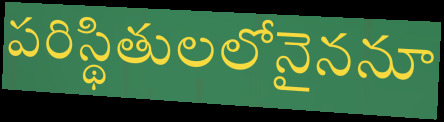
పరిస్థితులలోనైననూ